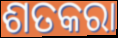
ଶତକରା